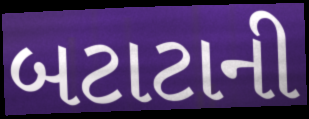
બટાટાની